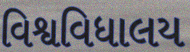
વિશ્વવિધાલય